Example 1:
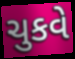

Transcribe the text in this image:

ચુકવે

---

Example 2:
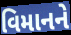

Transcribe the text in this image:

વિમાનને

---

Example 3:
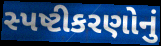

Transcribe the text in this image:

સ્પષ્ટીકરણોનું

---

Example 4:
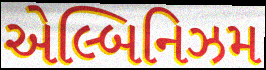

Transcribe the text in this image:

એલ્બિનિઝમ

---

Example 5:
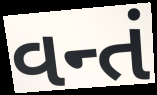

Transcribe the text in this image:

વન્તં